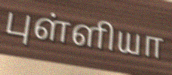
புள்ளியா